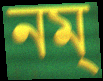
নম্